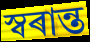
স্বৰান্ত